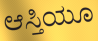
ಆಸ್ತಿಯೂ